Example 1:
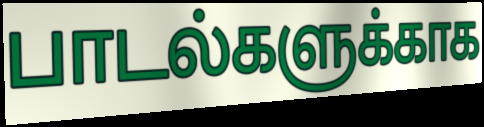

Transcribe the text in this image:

பாடல்களுக்காக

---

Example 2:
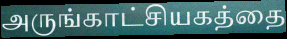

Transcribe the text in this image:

அருங்காட்சியகத்தை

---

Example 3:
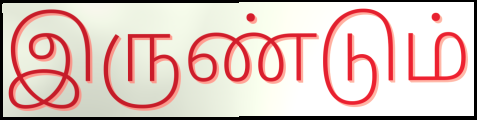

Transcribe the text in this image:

இருண்டும்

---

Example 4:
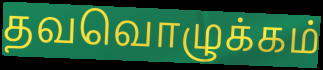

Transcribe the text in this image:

தவவொழுக்கம்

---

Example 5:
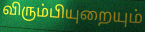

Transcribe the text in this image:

விரும்பியுறையும்